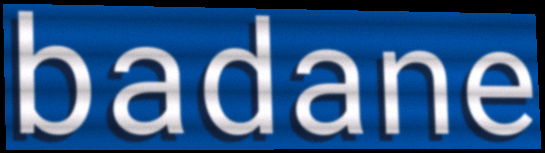
badane